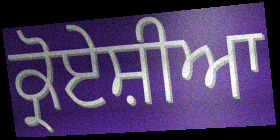
ਕ੍ਰੋਏਸ਼ੀਆ